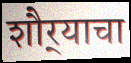
शौर्याचा